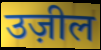
उज़ील